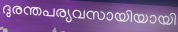
ദുരന്തപര്യവസായിയായി